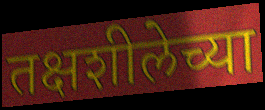
तक्षशीलेच्या